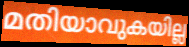
മതിയാവുകയില്ല